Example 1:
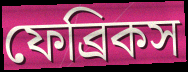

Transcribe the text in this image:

ফেব্রিকস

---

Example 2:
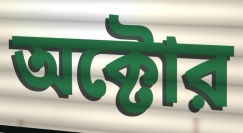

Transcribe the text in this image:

অক্টোর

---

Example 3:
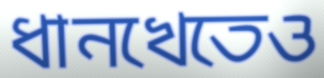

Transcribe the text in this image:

ধানখেতেও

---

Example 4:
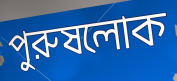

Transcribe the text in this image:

পুরুষলোক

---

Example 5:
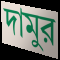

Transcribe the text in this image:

দামুর